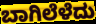
ಬಾಗಿಲೆಳೆದು